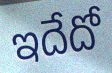
ఇదేదో